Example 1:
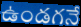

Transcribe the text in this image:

ఉండగనే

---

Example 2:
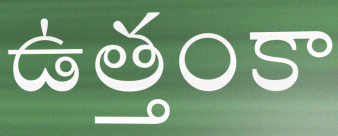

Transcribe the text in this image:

ఉత్తంకా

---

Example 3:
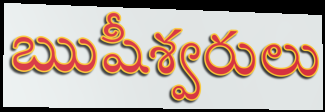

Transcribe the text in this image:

ఋషీశ్వరులు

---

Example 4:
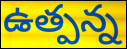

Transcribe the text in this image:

ఉత్పన్న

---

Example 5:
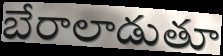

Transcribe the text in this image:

బేరాలాడుతూ